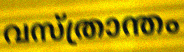
വസ്ത്രാന്തം